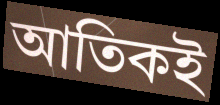
আতিকই